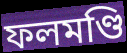
ফলমণ্ডি